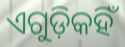
ଏଗୁଡ଼ିକହିଁ